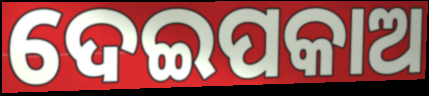
ଦେଇପକାଅ